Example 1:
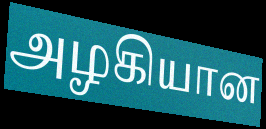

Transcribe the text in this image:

அழகியான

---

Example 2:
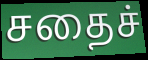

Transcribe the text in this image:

சதைச்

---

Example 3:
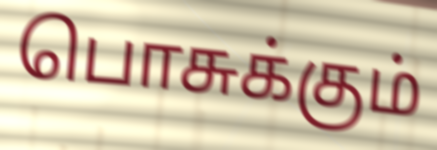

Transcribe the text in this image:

பொசுக்கும்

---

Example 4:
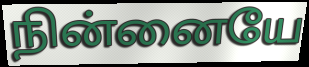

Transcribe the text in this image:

நின்னையே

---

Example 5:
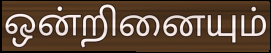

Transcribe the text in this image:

ஒன்றினையும்